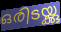
ഒരിടയ്ക്കു